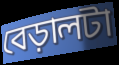
বেড়ালটা